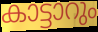
കാട്ടാറും